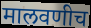
मालवणीच